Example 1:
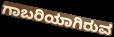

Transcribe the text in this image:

ಗಾಬರಿಯಾಗಿರುವ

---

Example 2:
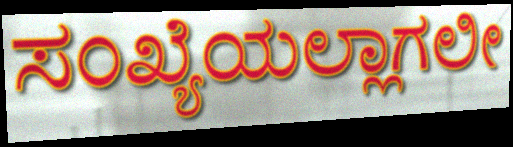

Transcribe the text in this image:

ಸಂಖ್ಯೆಯಲ್ಲಾಗಲೀ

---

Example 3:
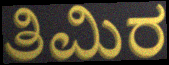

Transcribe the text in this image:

ತಿಮಿರ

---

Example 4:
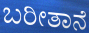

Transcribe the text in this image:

ಬರೀತಾನೆ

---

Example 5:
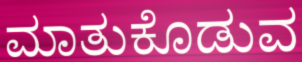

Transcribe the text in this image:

ಮಾತುಕೊಡುವ